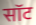
सॉट